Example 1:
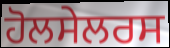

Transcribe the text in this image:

ਹੋਲਸੇਲਰਸ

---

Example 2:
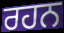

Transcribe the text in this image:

ਰਹਨ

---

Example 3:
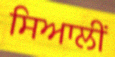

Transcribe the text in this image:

ਸਿਆਲੀਂ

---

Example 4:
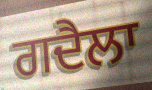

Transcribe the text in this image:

ਗਦੈਲਾ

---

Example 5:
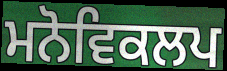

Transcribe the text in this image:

ਮਨੋਵਿਕਲਪ